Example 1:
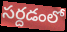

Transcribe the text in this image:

సర్దడంలో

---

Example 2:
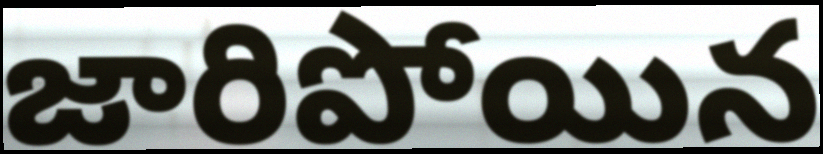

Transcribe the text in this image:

జారిపోయిన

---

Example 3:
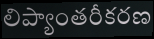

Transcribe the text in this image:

లిప్యాంతరీకరణ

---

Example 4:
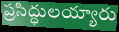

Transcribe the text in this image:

ప్రసిద్ధులయ్యారు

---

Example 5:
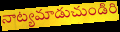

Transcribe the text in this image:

నాట్యమాడుచుండిరి